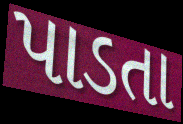
પાડતા